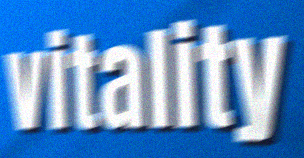
vitality